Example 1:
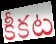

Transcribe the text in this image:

కీకట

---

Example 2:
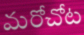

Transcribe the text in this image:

మరోచోట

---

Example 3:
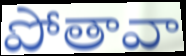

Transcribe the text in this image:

పోతావా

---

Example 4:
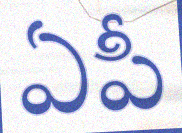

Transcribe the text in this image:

ఏపీ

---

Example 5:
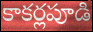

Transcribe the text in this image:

కాకర్లపూడి